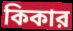
কিকার